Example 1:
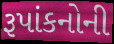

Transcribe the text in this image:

રૂપાંકનોની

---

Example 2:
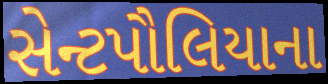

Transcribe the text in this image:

સેન્ટપૌલિયાના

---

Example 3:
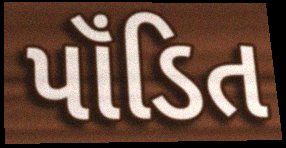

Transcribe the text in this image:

પૉંડિત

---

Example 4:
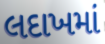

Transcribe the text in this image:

લદાખમાં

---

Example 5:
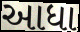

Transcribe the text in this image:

આધા